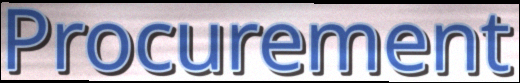
Procurement